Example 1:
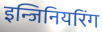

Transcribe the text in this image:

इन्जिनियरिंग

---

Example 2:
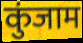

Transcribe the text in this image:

कुंजाम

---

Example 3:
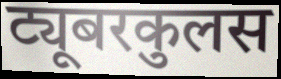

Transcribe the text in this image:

ट्यूबरकुलस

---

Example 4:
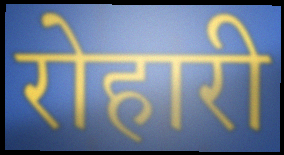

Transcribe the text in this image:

रोहारी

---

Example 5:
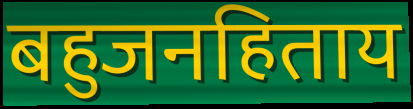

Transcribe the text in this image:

बहुजनहिताय